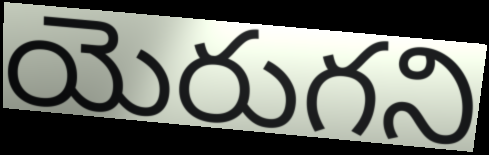
యెరుగని